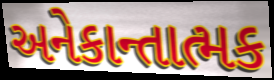
અનેકાન્તાત્મક